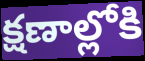
క్షణాల్లోకి